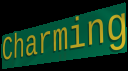
Charming